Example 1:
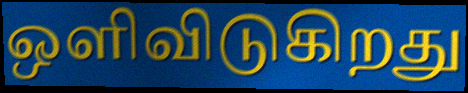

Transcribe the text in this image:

ஒளிவிடுகிறது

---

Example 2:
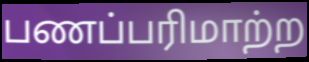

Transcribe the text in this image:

பணப்பரிமாற்ற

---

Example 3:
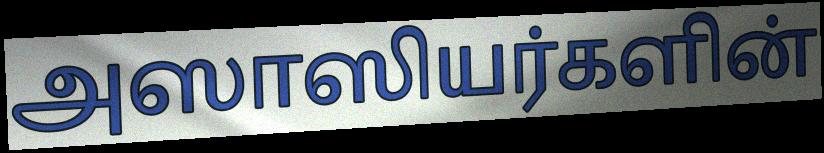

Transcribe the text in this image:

அஸாஸியர்களின்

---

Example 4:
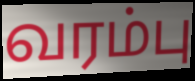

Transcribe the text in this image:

வரம்பு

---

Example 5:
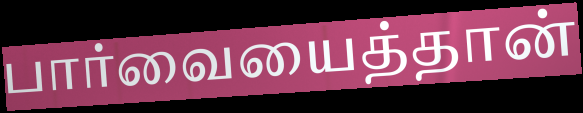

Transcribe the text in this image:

பார்வையைத்தான்